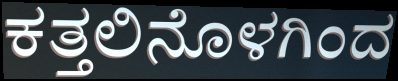
ಕತ್ತಲಿನೊಳಗಿಂದ